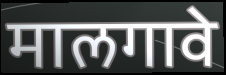
मालगावे